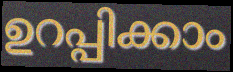
ഉറപ്പിക്കാം